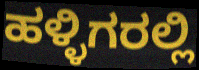
ಹಳ್ಳಿಗರಲ್ಲಿ